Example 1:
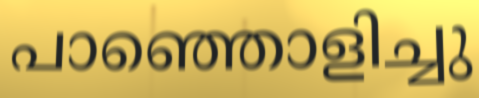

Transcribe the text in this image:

പാഞ്ഞൊളിച്ചു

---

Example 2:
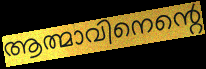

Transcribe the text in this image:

ആത്മാവിനെന്റെ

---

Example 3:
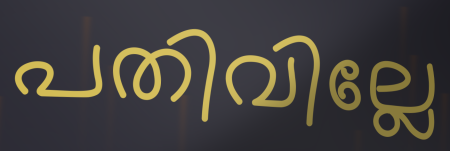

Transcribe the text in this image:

പതിവില്ലേ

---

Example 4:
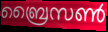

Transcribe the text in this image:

ബ്രൈസൺ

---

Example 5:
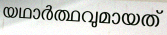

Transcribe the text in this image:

യഥാർത്ഥവുമായത്